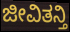
ಜೀವಿತನ್ತಿ